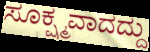
ಸೂಕ್ಷ್ಮವಾದದ್ದು